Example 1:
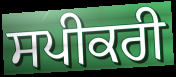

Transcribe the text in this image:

ਸਪੀਕਰੀ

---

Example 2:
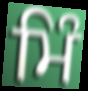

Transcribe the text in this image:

ਮਿੰ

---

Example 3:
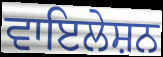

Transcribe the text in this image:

ਵਾਇਲੇਸ਼ਨ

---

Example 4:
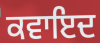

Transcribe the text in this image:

ਕਵਾਇਦ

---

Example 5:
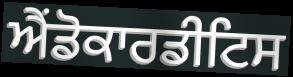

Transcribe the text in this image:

ਐਂਡੋਕਾਰਡੀਟਿਸ